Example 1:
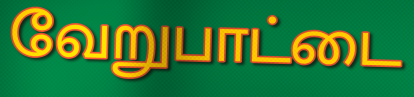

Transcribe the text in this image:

வேறுபாட்டை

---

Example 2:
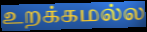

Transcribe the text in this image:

உறக்கமல்ல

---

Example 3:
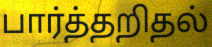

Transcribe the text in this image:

பார்த்தறிதல்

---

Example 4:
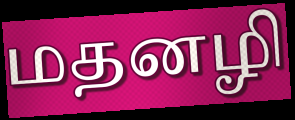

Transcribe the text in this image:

மதனழி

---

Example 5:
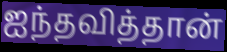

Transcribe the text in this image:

ஐந்தவித்தான்